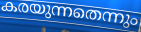
കരയുന്നതെന്നും